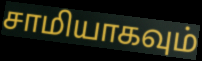
சாமியாகவும்